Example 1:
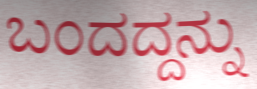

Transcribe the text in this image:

ಬಂದದ್ದನ್ನು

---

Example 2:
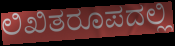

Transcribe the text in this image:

ಲಿಖಿತರೂಪದಲ್ಲಿ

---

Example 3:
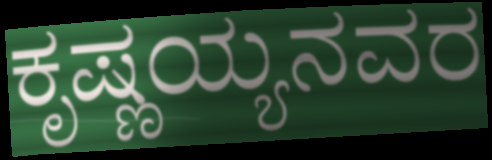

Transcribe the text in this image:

ಕೃಷ್ಣಯ್ಯನವರ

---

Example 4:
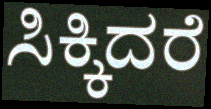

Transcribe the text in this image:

ಸಿಕ್ಕಿದರೆ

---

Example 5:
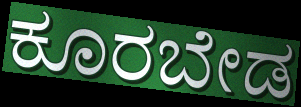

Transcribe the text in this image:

ಕೂರಬೇಡ